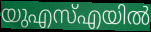
യുഎസ്എയിൽ